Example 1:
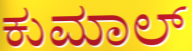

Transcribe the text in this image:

ಕುಮಾಲ್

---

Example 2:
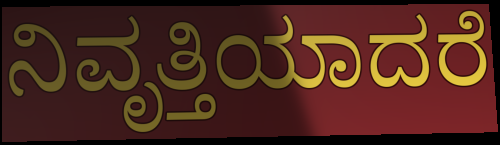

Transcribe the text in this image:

ನಿವೃತ್ತಿಯಾದರೆ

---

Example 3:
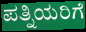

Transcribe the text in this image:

ಪತ್ನಿಯರಿಗೆ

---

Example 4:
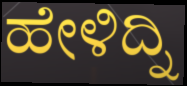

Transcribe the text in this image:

ಹೇಳಿದ್ನಿ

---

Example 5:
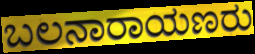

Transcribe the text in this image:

ಬಲನಾರಾಯಣರು